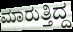
ಮಾರುತ್ತಿದ್ದ